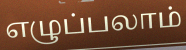
எழுப்பலாம்